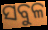
ସବୁଳ